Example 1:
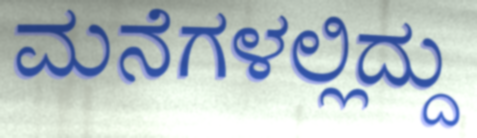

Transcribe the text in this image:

ಮನೆಗಳಲ್ಲಿದ್ದು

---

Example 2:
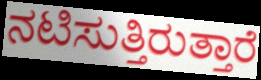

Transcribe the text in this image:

ನಟಿಸುತ್ತಿರುತ್ತಾರೆ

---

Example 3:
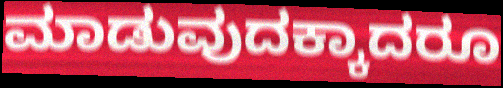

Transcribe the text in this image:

ಮಾಡುವುದಕ್ಕಾದರೂ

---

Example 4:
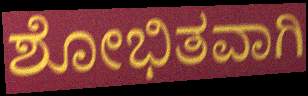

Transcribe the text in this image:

ಶೋಭಿತವಾಗಿ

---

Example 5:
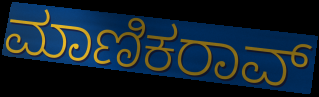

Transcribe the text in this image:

ಮಾಣಿಕರಾವ್